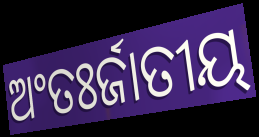
ଅଂତଃର୍ଜାତୀୟ